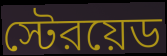
স্টেরয়েড